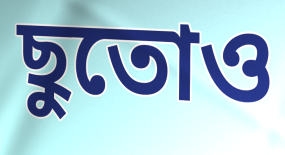
ছুতোও